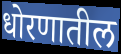
धोरणातील